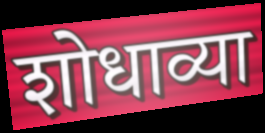
शोधाव्या